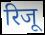
रिजू